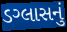
ડગ્લાસનું